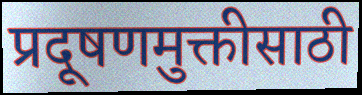
प्रदूषणमुक्तीसाठी